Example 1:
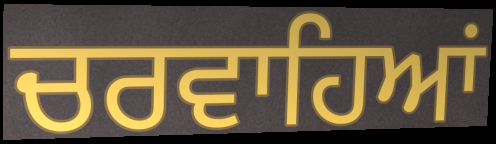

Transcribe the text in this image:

ਚਰਵਾਹਿਆਂ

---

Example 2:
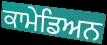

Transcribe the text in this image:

ਕਾਮੇਡਿਅਨ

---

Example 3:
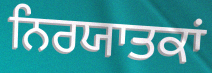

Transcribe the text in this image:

ਨਿਰਯਾਤਕਾਂ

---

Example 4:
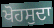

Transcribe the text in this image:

ਖੋਹਸੁਦਾ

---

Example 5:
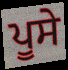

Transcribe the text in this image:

ਪੂਸੇ